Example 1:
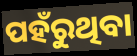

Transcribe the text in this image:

ପହଁରୁଥିବା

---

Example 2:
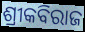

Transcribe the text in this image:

ଶ୍ରୀକବିରାଜ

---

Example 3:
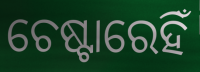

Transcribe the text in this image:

ଚେଷ୍ଟାରେହିଁ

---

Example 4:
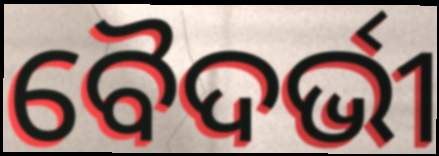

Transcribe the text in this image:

ବୈଦର୍ଭୀ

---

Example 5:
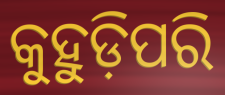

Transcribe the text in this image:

କୁହୁଡ଼ିପରି